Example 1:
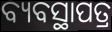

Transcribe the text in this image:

ବ୍ୟବସ୍ଥାପତ୍ର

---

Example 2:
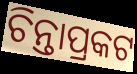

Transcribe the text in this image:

ଚିନ୍ତାପ୍ରକଟ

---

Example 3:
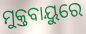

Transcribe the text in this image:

ମୁକ୍ତବାୟୁରେ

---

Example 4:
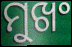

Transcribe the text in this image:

ମୁଖଂ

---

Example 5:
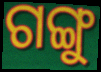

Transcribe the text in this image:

ଗଙ୍ଗୁ